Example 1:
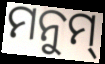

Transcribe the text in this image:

ମନୁମ୍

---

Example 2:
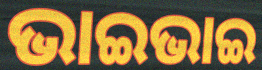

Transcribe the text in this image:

ଭାଇଭାଇ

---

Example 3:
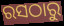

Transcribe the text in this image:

ରସଠାରୁ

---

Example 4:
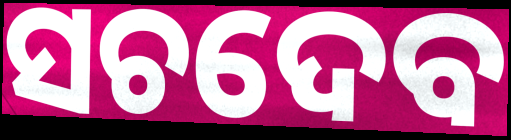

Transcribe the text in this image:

ସଚଦେବ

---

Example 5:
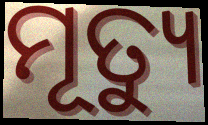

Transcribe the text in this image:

ମୂତ୍ୟୁ